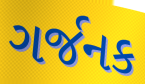
ગર્જનક